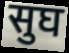
सुघ